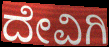
ದೇವಿಗಿ